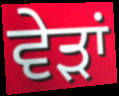
ਵੇੜਾਂ